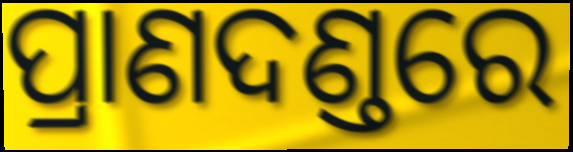
ପ୍ରାଣଦଣ୍ଡରେ